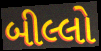
બીલ્લો